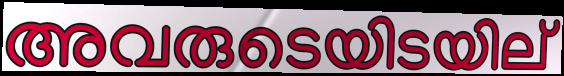
അവരുടെയിടയില്